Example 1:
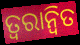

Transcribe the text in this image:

ତ୍ବରାନ୍ବିତ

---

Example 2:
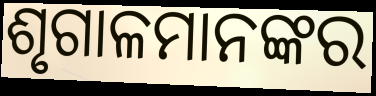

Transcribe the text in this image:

ଶୃଗାଳମାନଙ୍କର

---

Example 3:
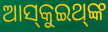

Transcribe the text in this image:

ଆସ୍‌କୁଇଥ୍‌ଙ୍କ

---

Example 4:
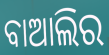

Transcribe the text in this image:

ବାଆଲିର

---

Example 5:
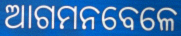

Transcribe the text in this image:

ଆଗମନବେଳେ